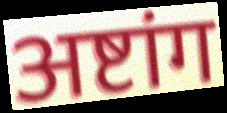
अष्टांग